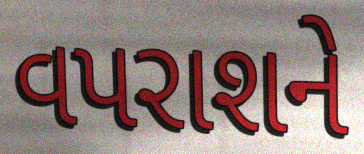
વપરાશને